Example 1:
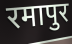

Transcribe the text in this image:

रमापुर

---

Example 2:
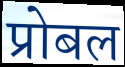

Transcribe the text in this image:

प्रोबल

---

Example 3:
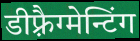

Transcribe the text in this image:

डीफ़्रैग्मेन्टिंग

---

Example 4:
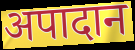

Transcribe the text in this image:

अपादान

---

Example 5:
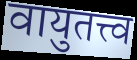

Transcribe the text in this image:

वायुतत्त्व